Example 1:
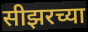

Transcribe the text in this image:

सीझरच्या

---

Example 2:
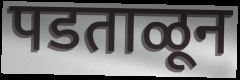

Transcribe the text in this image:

पडताळून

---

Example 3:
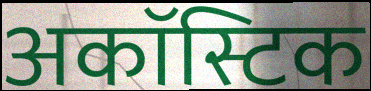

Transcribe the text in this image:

अकॉस्टिक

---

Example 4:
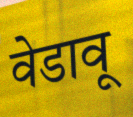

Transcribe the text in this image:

वेडावू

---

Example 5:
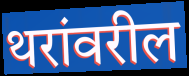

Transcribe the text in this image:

थरांवरील